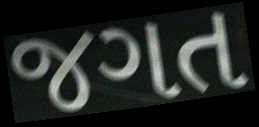
જગત